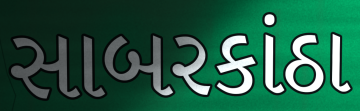
સાબરકાંઠા